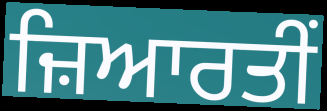
ਜ਼ਿਆਰਤੀਂ